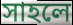
সাহলে